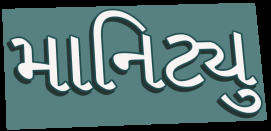
માનિટ્યુ